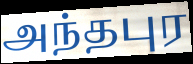
அந்தபுர